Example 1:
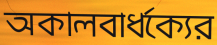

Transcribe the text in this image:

অকালবার্ধক্যের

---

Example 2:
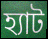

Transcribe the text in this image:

হ্যাট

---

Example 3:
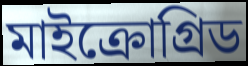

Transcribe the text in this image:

মাইক্রোগ্রিড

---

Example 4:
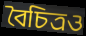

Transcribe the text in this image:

বৈচিত্রও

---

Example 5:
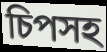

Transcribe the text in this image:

চিপসহ